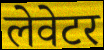
लेवेटर